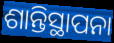
ଶାନ୍ତିସ୍ଥାପନା